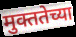
मुक्ततेच्या